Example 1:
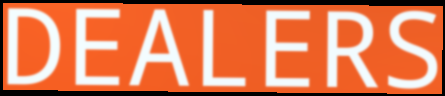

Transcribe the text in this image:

DEALERS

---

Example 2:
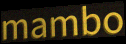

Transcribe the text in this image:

mambo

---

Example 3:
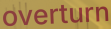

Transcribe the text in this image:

overturn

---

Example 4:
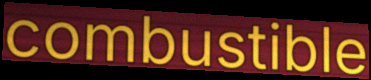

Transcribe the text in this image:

combustible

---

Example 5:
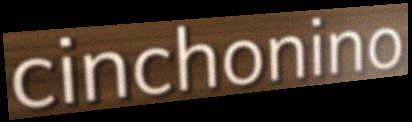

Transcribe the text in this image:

cinchonino